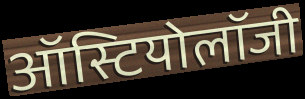
ऑस्टियोलॉजी